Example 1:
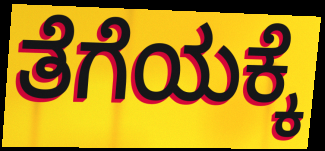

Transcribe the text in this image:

ತೆಗೆಯಕ್ಕೆ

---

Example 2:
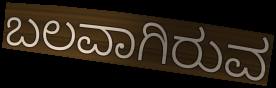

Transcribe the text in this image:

ಬಲವಾಗಿರುವ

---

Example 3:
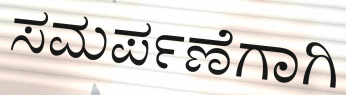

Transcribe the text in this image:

ಸಮರ್ಪಣೆಗಾಗಿ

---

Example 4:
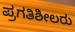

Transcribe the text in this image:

ಪ್ರಗತಿಶೀಲರು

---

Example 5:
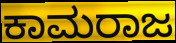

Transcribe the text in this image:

ಕಾಮರಾಜ